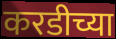
करडीच्या